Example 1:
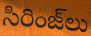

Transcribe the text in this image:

సిరింజ్‌లు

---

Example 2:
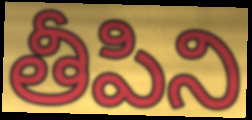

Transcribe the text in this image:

తీపిని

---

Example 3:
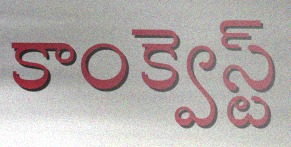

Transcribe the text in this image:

కాంక్వెస్ట్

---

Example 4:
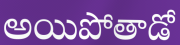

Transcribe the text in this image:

అయిపోతాడో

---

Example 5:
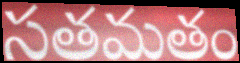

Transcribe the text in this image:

సతమతం